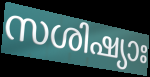
സശിഷ്യാഃ